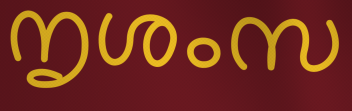
നൃശംസ